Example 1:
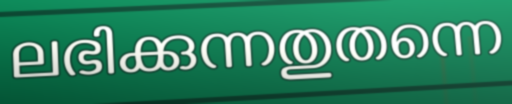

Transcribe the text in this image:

ലഭിക്കുന്നതുതന്നെ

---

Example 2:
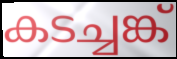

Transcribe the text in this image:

കടച്ചങ്ക്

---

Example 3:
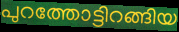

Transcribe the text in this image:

പുറത്തോട്ടിറങ്ങിയ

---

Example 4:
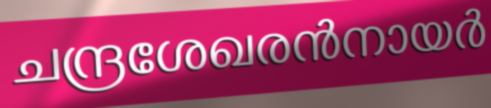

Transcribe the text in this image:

ചന്ദ്രശേഖരൻനായർ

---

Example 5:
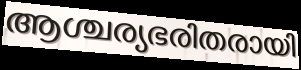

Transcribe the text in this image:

ആശ്ചര്യഭരിതരായി